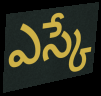
ఎస్కే